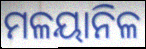
ମଳୟାନିଳ